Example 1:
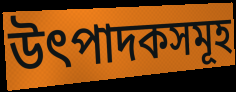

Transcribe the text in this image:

উৎপাদকসমূহ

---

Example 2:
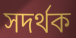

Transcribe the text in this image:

সদৰ্থক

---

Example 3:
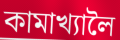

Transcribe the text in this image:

কামাখ্যালৈ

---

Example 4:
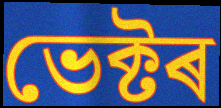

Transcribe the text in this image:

ভেক্টৰ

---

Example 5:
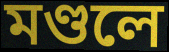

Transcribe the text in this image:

মণ্ডলে